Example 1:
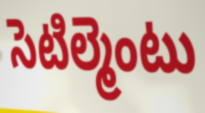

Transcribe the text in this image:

సెటిల్మెంటు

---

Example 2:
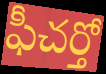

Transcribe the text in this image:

ఫీచర్తో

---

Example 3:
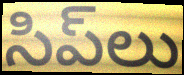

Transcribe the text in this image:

సిప్‌లు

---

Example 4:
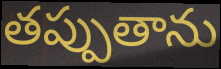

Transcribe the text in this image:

తప్పుతాను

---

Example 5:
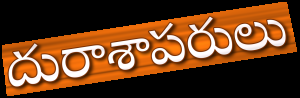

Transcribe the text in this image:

దురాశాపరులు